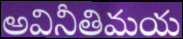
అవినీతిమయ